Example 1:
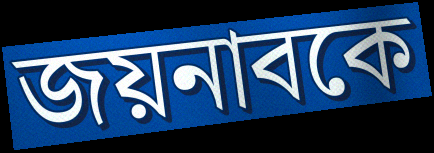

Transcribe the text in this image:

জয়নাবকে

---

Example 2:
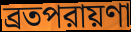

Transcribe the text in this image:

ব্রতপরায়ণা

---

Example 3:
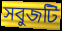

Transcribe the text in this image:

সবুজটি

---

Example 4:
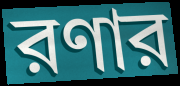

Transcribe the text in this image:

রণার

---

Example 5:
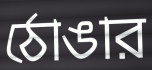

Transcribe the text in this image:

ঠোঙার